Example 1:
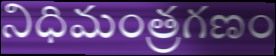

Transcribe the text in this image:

నిధిమంత్రగణం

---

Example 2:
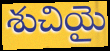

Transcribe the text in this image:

శుచియై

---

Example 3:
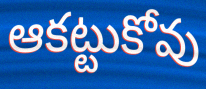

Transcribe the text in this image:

ఆకట్టుకోవు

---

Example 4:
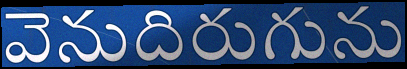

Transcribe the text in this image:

వెనుదిరుగును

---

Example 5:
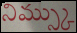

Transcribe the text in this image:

నిమ్స్కు